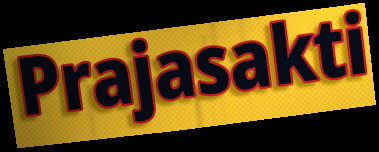
Prajasakti